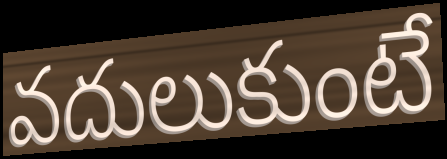
వదులుకుంటే